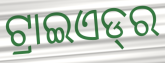
ଟ୍ରାଇଏଡ୍‌ର